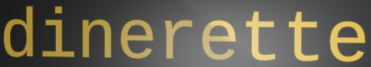
dinerette